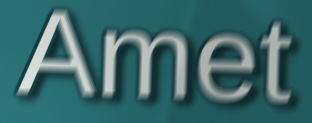
Amet